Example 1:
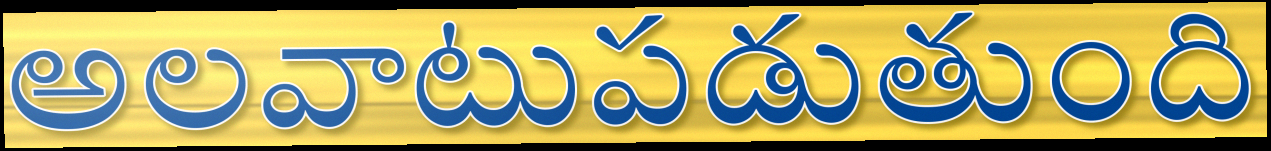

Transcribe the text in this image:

అలవాటుపడుతుంది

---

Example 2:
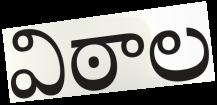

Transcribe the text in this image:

విఠాల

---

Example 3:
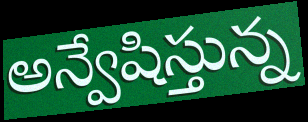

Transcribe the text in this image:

అన్వేషిస్తున్న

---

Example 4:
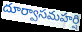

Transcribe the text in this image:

దూర్వాసమహర్షి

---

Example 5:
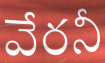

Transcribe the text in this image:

వేరనీ